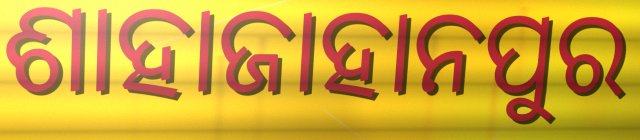
ଶାହାଜାହାନପୁର